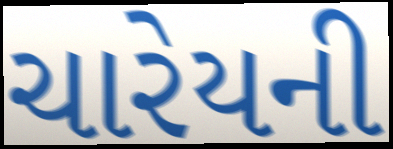
ચારેયની